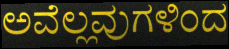
ಅವೆಲ್ಲವುಗಳಿಂದ